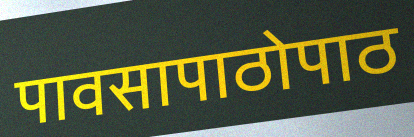
पावसापाठोपाठ